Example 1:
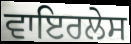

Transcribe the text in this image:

ਵਾਇਰਲੇਸ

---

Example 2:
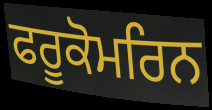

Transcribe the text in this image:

ਫਰੂਕੋਮਰਿਨ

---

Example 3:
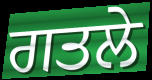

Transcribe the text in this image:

ਗਤਲੇ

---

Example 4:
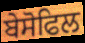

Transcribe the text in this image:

ਬੇਸੋਫਿਲ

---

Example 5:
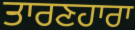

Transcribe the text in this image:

ਤਾਰਣਹਾਰਾ